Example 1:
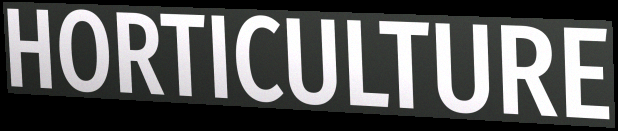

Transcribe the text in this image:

HORTICULTURE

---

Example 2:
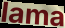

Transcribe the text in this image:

lama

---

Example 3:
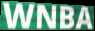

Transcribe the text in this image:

WNBA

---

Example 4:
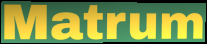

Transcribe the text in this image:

Matrum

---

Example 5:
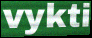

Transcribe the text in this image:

vykti